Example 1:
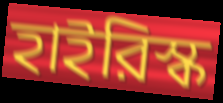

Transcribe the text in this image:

হাইরিস্ক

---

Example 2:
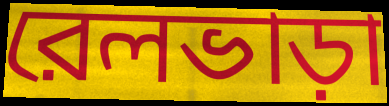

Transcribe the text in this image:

রেলভাড়া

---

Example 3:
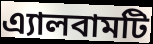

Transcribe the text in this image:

এ্যালবামটি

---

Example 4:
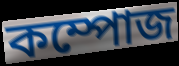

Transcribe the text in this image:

কম্পোজ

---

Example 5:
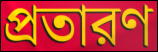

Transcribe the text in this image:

প্রতারণ